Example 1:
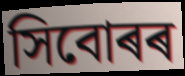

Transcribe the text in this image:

সিবোৰৰ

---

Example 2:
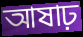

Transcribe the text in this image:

আষাঢ়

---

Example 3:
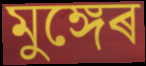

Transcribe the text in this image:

মুঙ্গেৰ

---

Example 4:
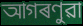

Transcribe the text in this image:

আগৰণুৱা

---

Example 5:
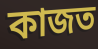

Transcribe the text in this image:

কাজত